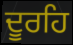
ਦੂਰਹਿ